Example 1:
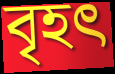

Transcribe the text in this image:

বৃহৎ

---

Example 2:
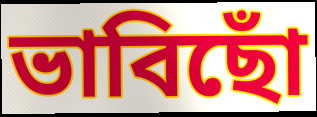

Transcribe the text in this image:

ভাবিছোঁ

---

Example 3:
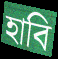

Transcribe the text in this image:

হাবি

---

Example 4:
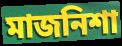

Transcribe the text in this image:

মাজনিশা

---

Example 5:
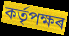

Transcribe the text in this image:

কৰ্তৃপক্ষৰ